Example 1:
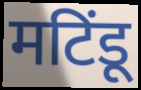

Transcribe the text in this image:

मटिंडू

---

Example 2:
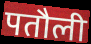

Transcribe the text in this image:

पतौली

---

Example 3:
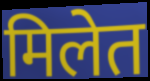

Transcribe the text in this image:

मिलेत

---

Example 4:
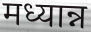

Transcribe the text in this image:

मध्यान्न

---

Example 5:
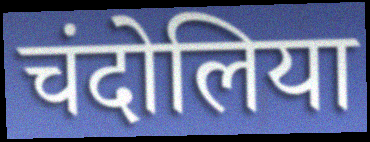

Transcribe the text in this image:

चंदोलिया